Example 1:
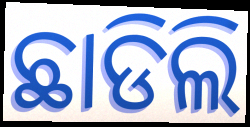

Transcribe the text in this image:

ଛାଡିଲି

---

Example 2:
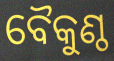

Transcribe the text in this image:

ବୈକୁଣ୍ଠ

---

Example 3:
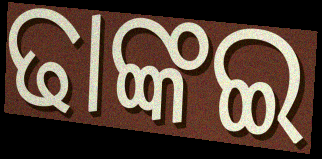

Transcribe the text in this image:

ଢାଙ୍କଇ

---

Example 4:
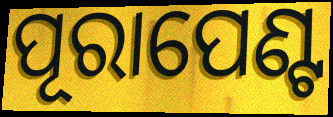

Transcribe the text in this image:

ପୂରାପେଣ୍ଟ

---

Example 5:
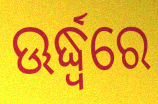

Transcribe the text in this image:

ଊର୍ଦ୍ଧ୍ୱରେ